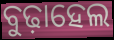
ବୁଢ଼ାହେଲ